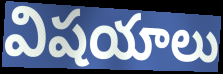
విషయాలు